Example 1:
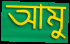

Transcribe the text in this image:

আমু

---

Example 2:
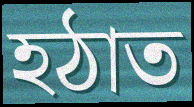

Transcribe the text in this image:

হঠাত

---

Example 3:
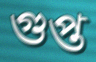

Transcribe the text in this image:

গুপ্ত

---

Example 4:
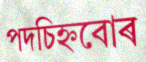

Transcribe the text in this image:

পদচিহ্নবোৰ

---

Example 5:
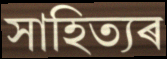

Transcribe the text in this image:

সাহিত্য়ৰ